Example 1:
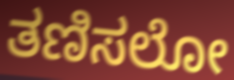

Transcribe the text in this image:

ತಣಿಸಲೋ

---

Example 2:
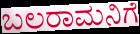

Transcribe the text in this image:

ಬಲರಾಮನಿಗೆ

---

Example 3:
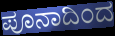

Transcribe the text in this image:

ಪೂನಾದಿಂದ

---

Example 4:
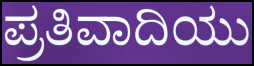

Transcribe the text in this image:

ಪ್ರತಿವಾದಿಯು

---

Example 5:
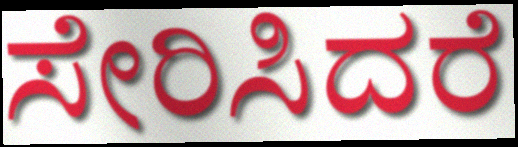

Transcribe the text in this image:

ಸೇರಿಸಿದರೆ